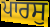
ਪਾਰਸੁ